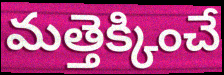
మత్తెక్కించే